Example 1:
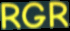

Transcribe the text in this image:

RGR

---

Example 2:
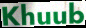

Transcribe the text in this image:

Khuub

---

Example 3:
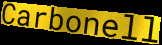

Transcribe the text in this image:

Carbonell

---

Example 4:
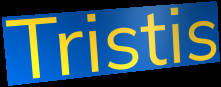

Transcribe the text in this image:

Tristis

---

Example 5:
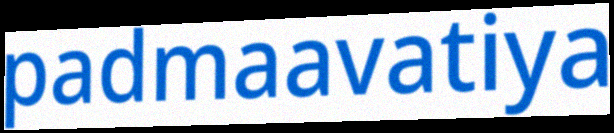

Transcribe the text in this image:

padmaavatiya